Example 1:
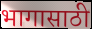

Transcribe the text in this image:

भागासाठी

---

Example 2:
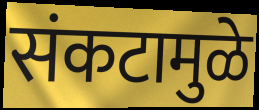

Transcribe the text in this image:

संकटामुळे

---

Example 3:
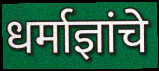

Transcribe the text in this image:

धर्माज्ञांचे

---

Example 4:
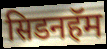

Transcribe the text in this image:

सिडनहॅम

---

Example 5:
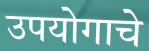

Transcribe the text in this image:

उपयोगाचे